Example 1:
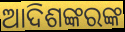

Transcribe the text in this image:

ଆଦିଶଙ୍କରଙ୍କ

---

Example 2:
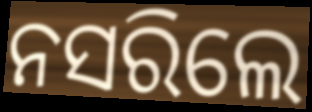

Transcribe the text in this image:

ନସରିଲେ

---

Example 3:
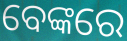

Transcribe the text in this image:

ବେଙ୍କରେ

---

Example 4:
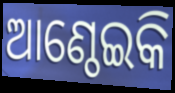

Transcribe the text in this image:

ଆଣ୍ଠେଇକି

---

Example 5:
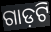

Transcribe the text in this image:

ଗାଡ଼ଟି